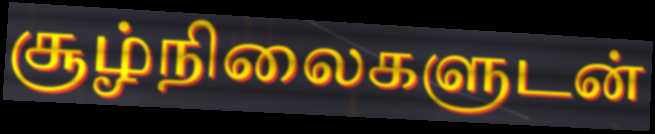
சூழ்நிலைகளுடன்